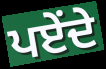
ਪਏਂਦੇ